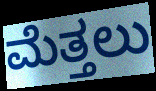
ಮೆತ್ತಲು